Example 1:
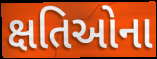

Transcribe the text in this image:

ક્ષતિઓના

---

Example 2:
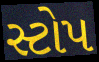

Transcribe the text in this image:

સ્ટોપ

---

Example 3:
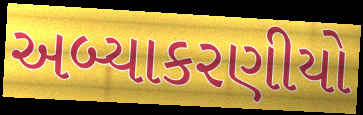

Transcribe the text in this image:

અબ્યાકરણીયો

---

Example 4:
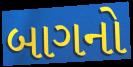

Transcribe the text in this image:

બાગનો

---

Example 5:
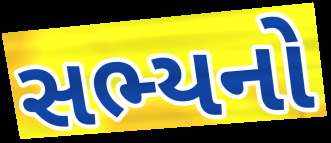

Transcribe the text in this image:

સભ્યનો